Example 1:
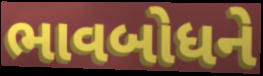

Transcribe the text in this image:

ભાવબોધને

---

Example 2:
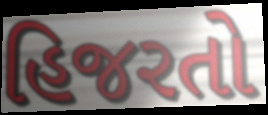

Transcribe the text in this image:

હિજરતો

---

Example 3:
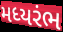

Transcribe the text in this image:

મધ્યરંભ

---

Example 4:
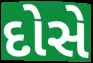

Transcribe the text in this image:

દોસે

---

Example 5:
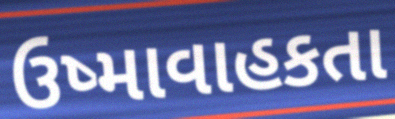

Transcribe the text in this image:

ઉષ્માવાહકતા